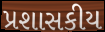
પ્રશાસકીય